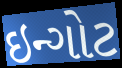
ઇન્ગોટ